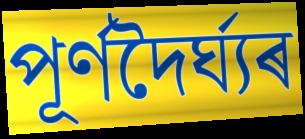
পূৰ্ণদৈৰ্ঘ্যৰ